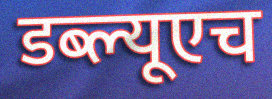
डब्ल्यूएच